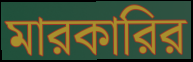
মারকারির